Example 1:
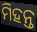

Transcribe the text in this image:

ମିହନ୍ତ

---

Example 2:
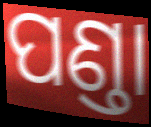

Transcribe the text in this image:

ପଣ୍ଡା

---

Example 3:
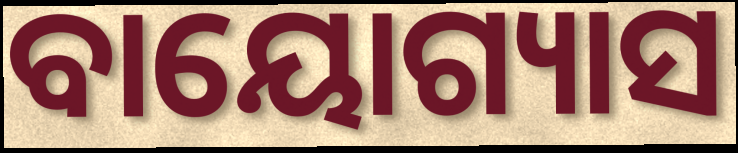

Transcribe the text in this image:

ବାୟୋଗ୍ୟାସ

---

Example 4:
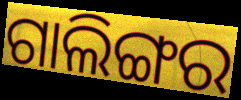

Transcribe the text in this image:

ଗାଲିଙ୍ଗର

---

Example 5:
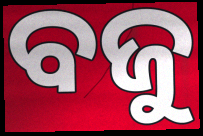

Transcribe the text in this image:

ବଜୁ